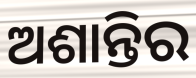
ଅଶାନ୍ତିର